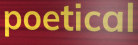
poetical